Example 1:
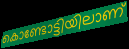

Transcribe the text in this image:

കൊണ്ടോട്ടിയിലാണ്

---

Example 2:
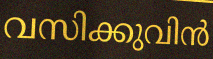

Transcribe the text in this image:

വസിക്കുവിൻ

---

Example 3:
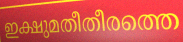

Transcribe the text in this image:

ഇക്ഷുമതീതീരത്തെ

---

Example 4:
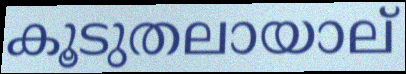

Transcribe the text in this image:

കൂടുതലായാല്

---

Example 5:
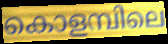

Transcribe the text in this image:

കൊളമ്പിലെ